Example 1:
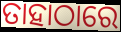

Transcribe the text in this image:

ତାହାଠାରେ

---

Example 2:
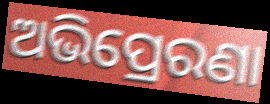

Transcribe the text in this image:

ଅଭିପ୍ରେରଣା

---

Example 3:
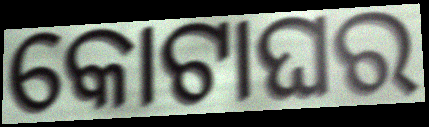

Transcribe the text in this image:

କୋଟାଘର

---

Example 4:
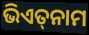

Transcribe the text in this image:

ଭିଏତ୍‌ନାମ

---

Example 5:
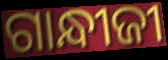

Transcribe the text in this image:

ଗାନ୍ଧୀଜୀ